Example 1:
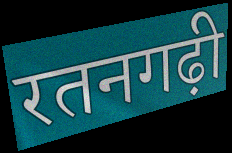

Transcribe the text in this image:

रतनगढ़ी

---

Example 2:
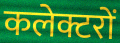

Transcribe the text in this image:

कलेक्टरों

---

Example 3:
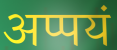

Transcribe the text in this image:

अप्पयं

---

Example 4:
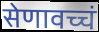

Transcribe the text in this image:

सेणावच्चं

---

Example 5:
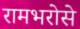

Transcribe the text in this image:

रामभरोसे